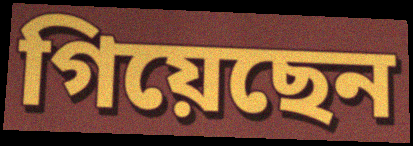
গিয়েছেন